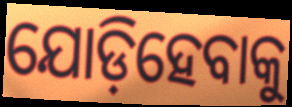
ଯୋଡ଼ିହେବାକୁ